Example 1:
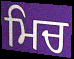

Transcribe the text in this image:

ਮਿਚ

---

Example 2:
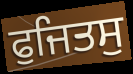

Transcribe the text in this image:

ਫੁਜਿਤਸੁ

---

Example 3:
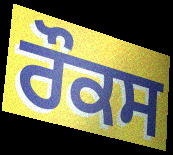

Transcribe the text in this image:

ਰੌਕਸ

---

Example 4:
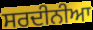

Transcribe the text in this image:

ਸਰਦੀਨੀਆ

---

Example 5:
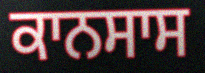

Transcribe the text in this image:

ਕਾਨਸਾਸ